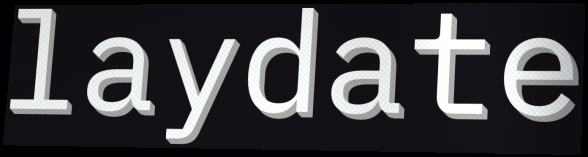
laydate